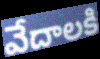
వేదాలకి